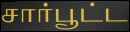
சார்பூட்ட